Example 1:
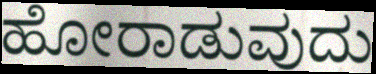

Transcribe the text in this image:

ಹೋರಾಡುವುದು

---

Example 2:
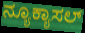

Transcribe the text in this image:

ನ್ಯೂಕ್ಯಾಸಲ್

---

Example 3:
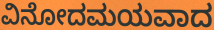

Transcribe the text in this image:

ವಿನೋದಮಯವಾದ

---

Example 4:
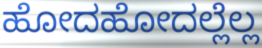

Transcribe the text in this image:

ಹೋದಹೋದಲ್ಲೆಲ್ಲ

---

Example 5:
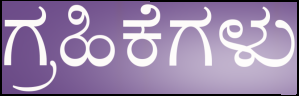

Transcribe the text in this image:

ಗ್ರಹಿಕೆಗಳು